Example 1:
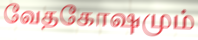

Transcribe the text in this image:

வேதகோஷமும்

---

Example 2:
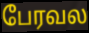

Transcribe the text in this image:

பேரவல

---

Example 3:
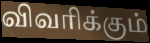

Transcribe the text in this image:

விவரிக்கும்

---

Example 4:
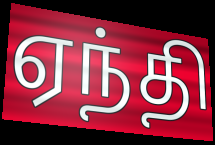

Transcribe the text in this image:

ஏந்தி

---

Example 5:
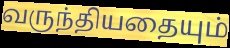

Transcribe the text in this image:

வருந்தியதையும்